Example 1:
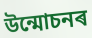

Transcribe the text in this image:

উন্মোচনৰ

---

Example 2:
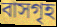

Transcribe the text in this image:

বাসগৃহ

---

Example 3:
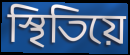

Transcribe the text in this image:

স্থিতিয়ে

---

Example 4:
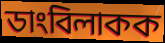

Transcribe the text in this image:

ডাংবিলাকক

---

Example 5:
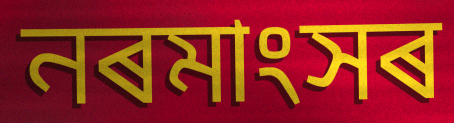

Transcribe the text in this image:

নৰমাংসৰ